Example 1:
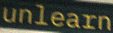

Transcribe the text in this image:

unlearn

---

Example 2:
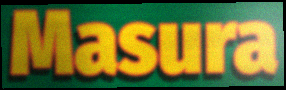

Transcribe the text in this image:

Masura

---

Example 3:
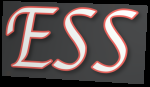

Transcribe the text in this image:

ESS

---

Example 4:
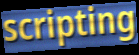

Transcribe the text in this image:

scripting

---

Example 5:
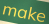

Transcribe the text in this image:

make